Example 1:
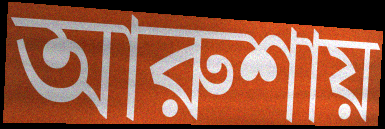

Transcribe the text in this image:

আরুশায়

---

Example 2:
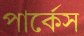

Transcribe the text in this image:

পার্কেস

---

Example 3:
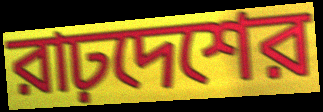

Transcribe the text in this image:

রাঢ়দেশের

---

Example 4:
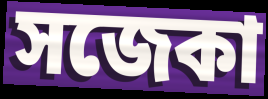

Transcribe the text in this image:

সজেকা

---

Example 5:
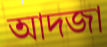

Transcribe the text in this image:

আদজা